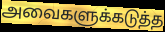
அவைகளுக்கடுத்த